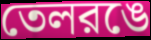
তেলরঙে